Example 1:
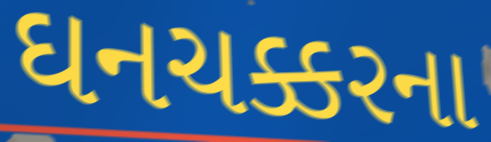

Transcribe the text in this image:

ઘનચક્કરના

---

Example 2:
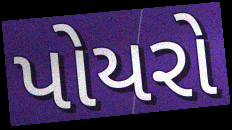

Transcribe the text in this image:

પોયરો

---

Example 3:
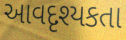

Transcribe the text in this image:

આવદૃશ્યકતા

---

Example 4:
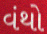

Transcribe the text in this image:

વંથો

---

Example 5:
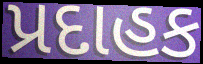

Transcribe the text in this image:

પ્રદાહક